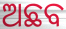
ଅଛବ